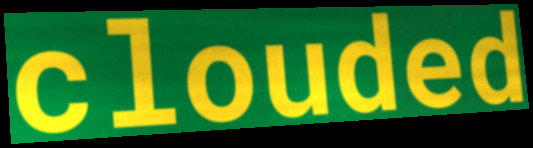
clouded